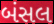
બંસલ